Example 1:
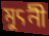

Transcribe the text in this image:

মুৎনী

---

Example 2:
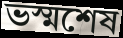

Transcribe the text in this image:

ভস্মশেষ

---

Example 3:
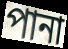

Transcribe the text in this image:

পানা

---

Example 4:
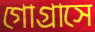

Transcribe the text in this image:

গোগ্রাসে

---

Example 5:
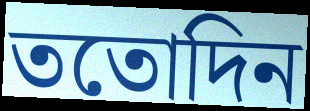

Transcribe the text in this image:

ততোদিন